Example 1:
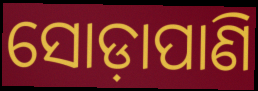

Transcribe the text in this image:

ସୋଡ଼ାପାଣି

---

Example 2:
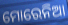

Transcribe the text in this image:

ମୋରେନିଆ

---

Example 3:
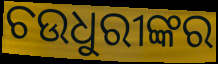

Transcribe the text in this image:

ଚଉଧୁରୀଙ୍କର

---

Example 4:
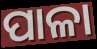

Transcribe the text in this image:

ପାଳା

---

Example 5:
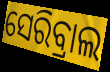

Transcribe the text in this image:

ସେରିବ୍ରାଲ